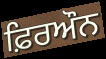
ਫ਼ਿਰਔਨ